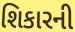
શિકારની